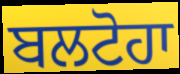
ਬਲਟੋਹਾ